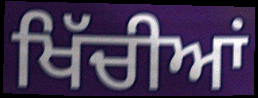
ਖਿੱਚੀਆਂ